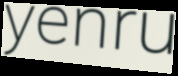
yenru